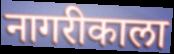
नागरीकाला